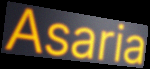
Asaria